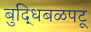
बुद्धिबळपटू